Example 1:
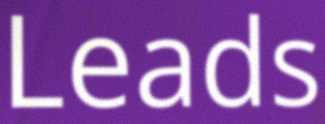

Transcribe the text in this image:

Leads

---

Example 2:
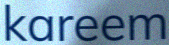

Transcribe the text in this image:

kareem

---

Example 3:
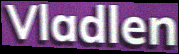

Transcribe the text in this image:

Vladlen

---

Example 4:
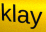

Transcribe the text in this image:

klay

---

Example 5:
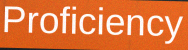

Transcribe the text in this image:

Proficiency